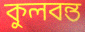
কুলবন্ত